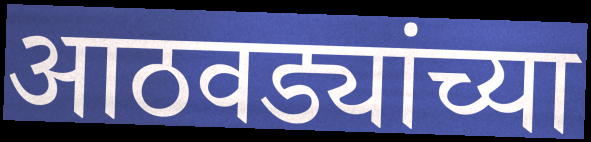
आठवड्यांच्या